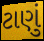
ટાણું